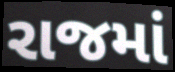
રાજમાં